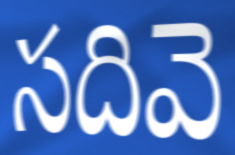
సదివె